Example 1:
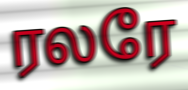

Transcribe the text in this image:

ரலரே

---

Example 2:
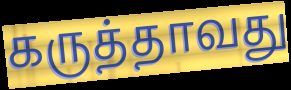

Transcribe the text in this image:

கருத்தாவது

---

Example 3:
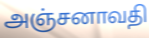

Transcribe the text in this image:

அஞ்சனாவதி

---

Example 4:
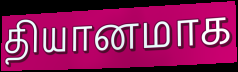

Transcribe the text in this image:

தியானமாக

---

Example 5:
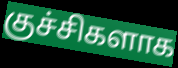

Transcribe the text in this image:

குச்சிகளாக